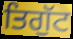
ਤਿਗੁੱਟ